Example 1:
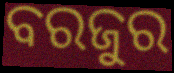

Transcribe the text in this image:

ବରଜୁର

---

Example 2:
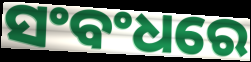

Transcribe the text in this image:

ସଂବଂଧରେ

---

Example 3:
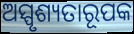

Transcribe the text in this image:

ଅସ୍ପୃଶ୍ୟତାରୂପକ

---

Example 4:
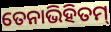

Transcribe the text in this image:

ତେନାଭିହିତମ୍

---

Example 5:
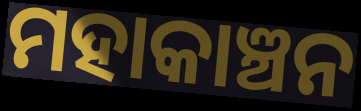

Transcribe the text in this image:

ମହାକାଞ୍ଚନ